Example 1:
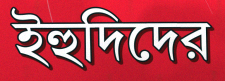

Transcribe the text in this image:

ইহুদিদের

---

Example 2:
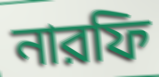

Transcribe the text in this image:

নারফি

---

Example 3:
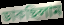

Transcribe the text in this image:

ডাকছিলাম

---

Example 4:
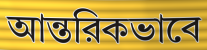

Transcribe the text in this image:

আন্তরিকভাবে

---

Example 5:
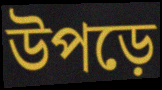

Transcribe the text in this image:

উপড়ে